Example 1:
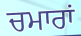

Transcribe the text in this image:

ਚਮਾਰਾਂ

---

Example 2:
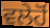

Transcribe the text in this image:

ਵਲੇਹੋਂ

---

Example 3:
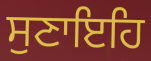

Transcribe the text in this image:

ਸੁਣਾਇਹਿ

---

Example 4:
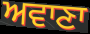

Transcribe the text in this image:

ਅਵਾਣਾ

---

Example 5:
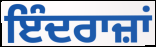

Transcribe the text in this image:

ਇੰਦਰਾਜ਼ਾਂ